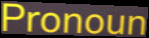
Pronoun